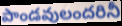
పాండవులందరినీ